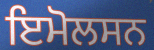
ਇਮੋਲਸਨ